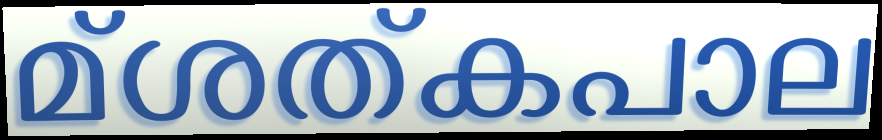
മ്ശത്കപാല